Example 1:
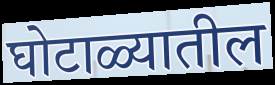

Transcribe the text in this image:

घोटाळ्यातील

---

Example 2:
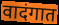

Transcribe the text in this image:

वादंगात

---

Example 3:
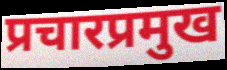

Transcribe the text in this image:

प्रचारप्रमुख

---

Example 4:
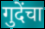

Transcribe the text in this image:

गुदेंचा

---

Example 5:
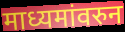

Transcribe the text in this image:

माध्यमांवरुन